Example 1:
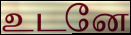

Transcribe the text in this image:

உடனே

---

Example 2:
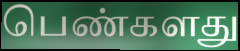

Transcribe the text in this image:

பெண்களது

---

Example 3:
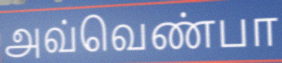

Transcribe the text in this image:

அவ்வெண்பா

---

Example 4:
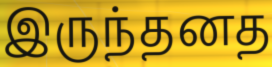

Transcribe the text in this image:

இருந்தனத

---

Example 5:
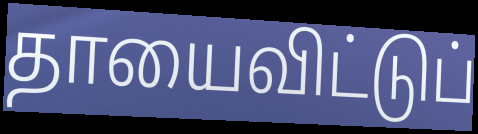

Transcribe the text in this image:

தாயைவிட்டுப்